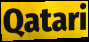
Qatari